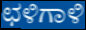
ಛಳಿಗಾಳಿ